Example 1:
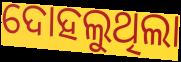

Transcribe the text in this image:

ଦୋହଲୁଥିଲା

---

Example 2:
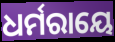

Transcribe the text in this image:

ଧର୍ମରାୟେ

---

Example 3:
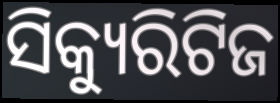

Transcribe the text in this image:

ସିକ୍ୟୁରିଟିଜ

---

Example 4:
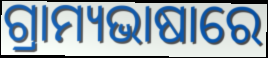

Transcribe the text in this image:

ଗ୍ରାମ୍ୟଭାଷାରେ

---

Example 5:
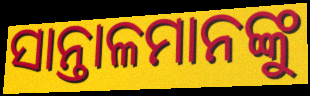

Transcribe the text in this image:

ସାନ୍ତାଳମାନଙ୍କୁ